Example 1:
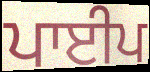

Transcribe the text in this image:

ਪਾਈਪ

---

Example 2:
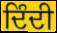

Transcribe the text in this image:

ਦਿੰਦੀ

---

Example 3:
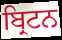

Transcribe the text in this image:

ਬ੍ਰਿਟਨ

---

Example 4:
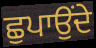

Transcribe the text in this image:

ਛੁਪਾਉਂਦੇ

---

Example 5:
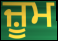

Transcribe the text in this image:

ਜ਼ੂਮ